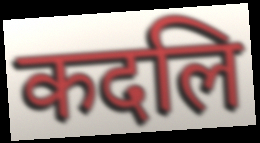
कदलि